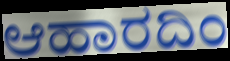
ಆಹಾರದಿಂ